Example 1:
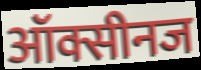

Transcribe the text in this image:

ऑक्सीनज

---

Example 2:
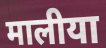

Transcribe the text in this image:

मालीया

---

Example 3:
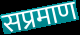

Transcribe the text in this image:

सप्रमाण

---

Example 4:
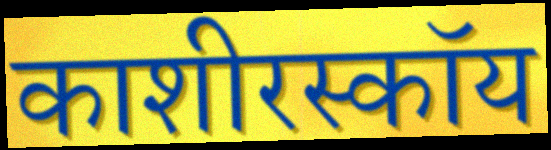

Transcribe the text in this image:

काशीरस्कॉय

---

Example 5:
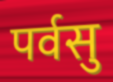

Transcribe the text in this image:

पर्वसु